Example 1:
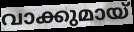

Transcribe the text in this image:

വാക്കുമായ്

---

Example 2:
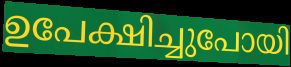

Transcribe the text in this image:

ഉപേക്ഷിച്ചുപോയി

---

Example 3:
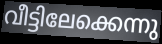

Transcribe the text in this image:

വീട്ടിലേക്കെന്നു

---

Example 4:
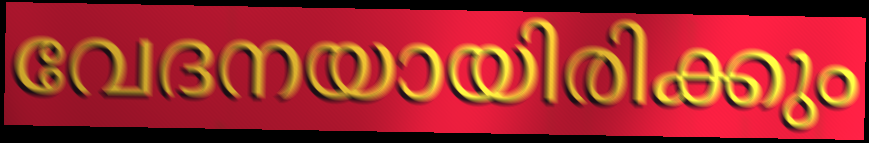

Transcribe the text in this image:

വേദനയായിരിക്കും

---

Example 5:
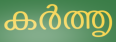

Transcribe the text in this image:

കർത്തൃ